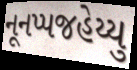
નૂનપ્પજહેય્યુ